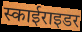
स्काईराइडर